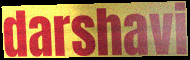
darshavi